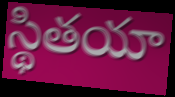
స్థితయా